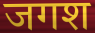
जगश